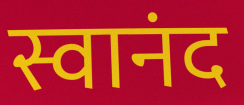
स्वानंद